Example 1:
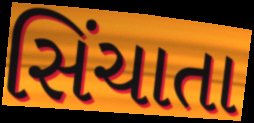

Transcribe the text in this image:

સિંચાતા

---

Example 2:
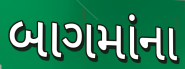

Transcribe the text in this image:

બાગમાંના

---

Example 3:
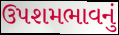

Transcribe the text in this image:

ઉપશમભાવનું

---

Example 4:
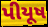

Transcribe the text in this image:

પીયૂષ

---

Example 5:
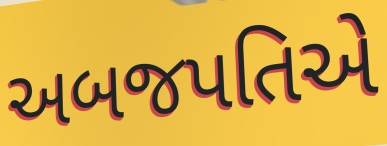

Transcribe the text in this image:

અબજપતિએ